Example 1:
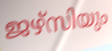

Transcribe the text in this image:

ജഴ്സിയും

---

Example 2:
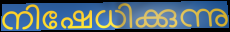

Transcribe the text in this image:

നിഷേധിക്കുന്നു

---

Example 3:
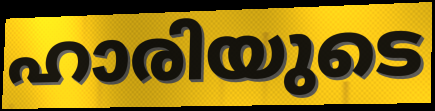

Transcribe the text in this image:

ഹാരിയുടെ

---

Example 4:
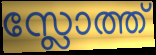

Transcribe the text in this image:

സ്ലോത്ത്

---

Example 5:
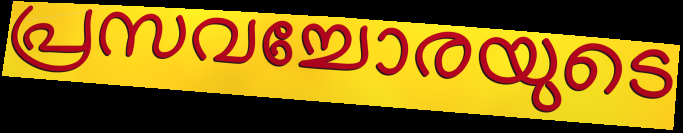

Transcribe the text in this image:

പ്രസവച്ചോരയുടെ